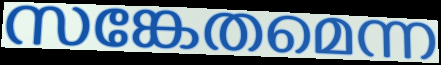
സങ്കേതമെന്ന